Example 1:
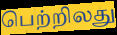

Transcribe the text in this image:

பெற்றிலது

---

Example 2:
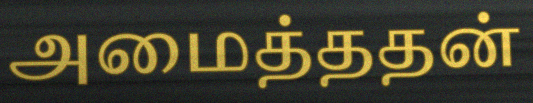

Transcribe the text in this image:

அமைத்ததன்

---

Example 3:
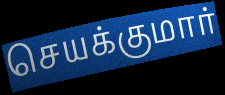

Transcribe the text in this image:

செயக்குமார்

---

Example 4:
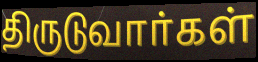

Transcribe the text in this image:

திருடுவார்கள்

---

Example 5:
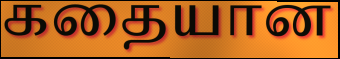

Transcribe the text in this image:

கதையான